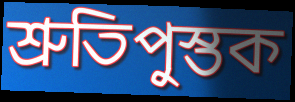
শ্রুতিপুস্তক